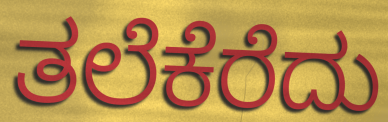
ತಲೆಕೆರೆದು